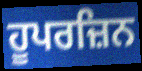
ਹੂਪਰਜ਼ਿਨ